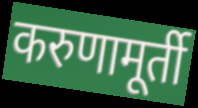
करुणामूर्ती